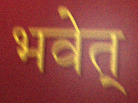
भवेत्